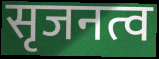
सृजनत्व